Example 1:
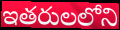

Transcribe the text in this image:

ఇతరులలోని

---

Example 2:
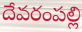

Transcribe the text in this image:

దేవరంపల్లి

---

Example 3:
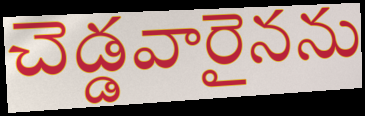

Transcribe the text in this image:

చెడ్డవారైనను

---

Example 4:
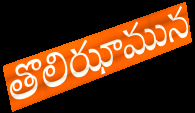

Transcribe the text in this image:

తొలిఝామున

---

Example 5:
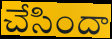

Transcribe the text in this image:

చేసిందా